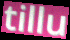
tillu